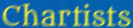
Chartists